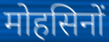
मोहसिनों